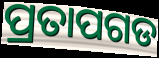
ପ୍ରତାପଗଡ